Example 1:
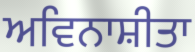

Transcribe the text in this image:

ਅਵਿਨਾਸ਼ੀਤਾ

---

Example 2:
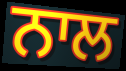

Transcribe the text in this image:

ਨਾਲ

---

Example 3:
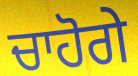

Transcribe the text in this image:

ਚਾਹੋਗੇ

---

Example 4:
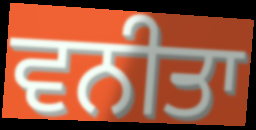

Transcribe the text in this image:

ਵਨੀਤਾ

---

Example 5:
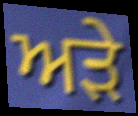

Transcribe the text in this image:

ਅੜੇ